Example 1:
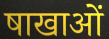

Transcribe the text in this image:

षाखाओं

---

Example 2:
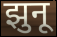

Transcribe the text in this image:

झुनू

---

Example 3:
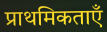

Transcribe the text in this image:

प्राथमिकताएँ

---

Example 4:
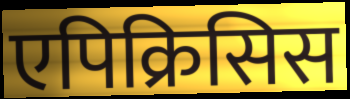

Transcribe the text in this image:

एपिक्रिसिस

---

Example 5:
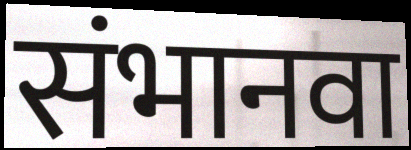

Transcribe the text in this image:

संभानवा